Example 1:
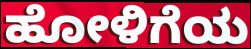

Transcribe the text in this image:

ಹೋಳಿಗೆಯ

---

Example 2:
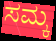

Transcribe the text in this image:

ಸಮ್ಕ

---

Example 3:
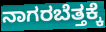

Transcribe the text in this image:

ನಾಗರಬೆತ್ತಕ್ಕೆ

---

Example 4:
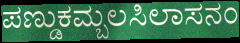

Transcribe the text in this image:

ಪಣ್ಡುಕಮ್ಬಲಸಿಲಾಸನಂ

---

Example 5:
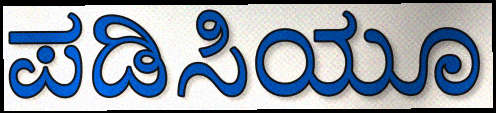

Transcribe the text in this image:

ಪಡಿಸಿಯೂ